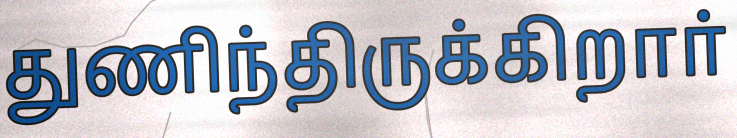
துணிந்திருக்கிறார்